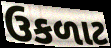
ઉકળાટ